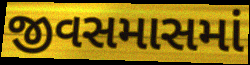
જીવસમાસમાં